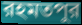
রহমতপুর